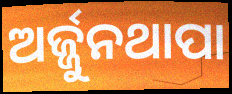
ଅର୍ଜ୍ଜୁନଥାପା